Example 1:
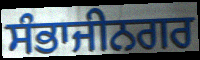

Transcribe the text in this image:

ਸੰਭਾਜੀਨਗਰ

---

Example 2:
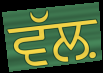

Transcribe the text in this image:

ਵੱਲ਼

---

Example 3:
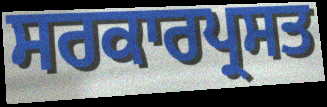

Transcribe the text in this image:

ਸਰਕਾਰਪ੍ਰਸਤ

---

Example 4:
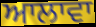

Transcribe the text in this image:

ਆਲਾਵਾ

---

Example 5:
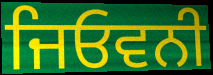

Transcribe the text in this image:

ਜਿਓਵਨੀ